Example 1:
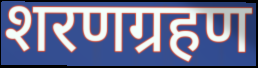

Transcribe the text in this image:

शरणग्रहण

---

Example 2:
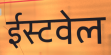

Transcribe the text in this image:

ईस्टवेल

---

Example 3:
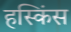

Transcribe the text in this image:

हस्किंस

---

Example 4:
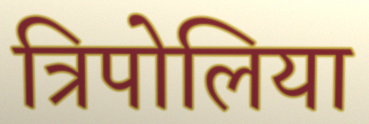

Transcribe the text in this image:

त्रिपोलिया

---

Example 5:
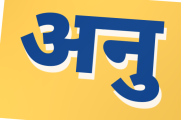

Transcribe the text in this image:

अनु